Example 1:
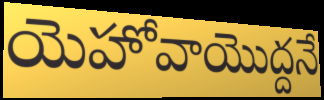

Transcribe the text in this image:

యెహోవాయొద్దనే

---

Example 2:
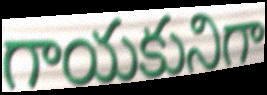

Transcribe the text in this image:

గాయకునిగా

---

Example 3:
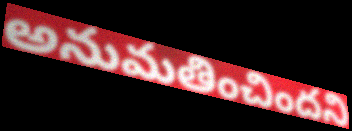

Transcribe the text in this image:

అనుమతించిందని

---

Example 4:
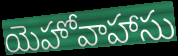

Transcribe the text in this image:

యెహోవాహాసు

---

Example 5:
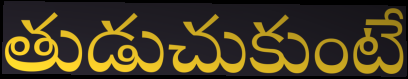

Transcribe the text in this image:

తుడుచుకుంటే